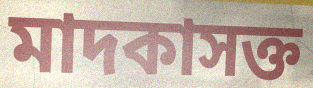
মাদকাসক্ত